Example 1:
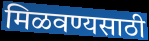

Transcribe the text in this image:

मिळवण्यसाठी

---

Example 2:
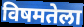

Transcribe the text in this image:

विषमतेला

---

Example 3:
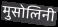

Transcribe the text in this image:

मुसोलिनी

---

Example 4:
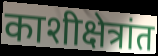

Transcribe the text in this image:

काशीक्षेत्रांत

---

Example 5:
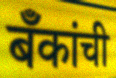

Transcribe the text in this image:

बॅँकांची